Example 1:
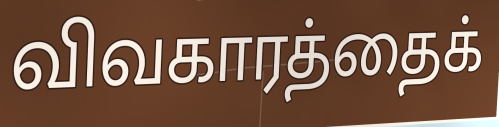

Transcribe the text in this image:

விவகாரத்தைக்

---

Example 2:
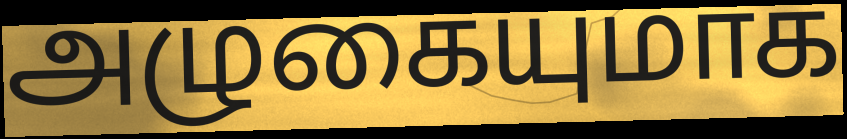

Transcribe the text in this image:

அழுகையுமாக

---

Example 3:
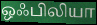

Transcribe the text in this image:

ஒஃபிலியா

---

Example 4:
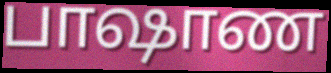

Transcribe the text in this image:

பாஷாண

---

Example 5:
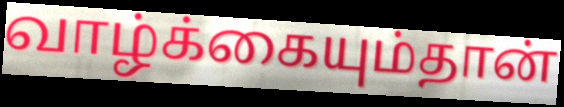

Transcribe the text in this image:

வாழ்க்கையும்தான்